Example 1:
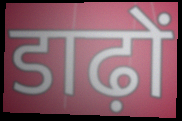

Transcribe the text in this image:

डाढ़ों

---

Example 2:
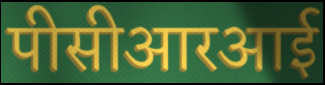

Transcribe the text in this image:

पीसीआरआई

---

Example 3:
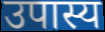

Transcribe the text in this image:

उपास्य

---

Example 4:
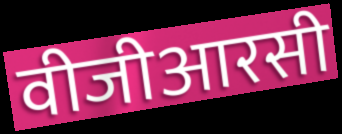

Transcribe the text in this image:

वीजीआरसी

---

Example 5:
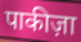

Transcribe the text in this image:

पाकीज़ा